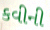
કવીની